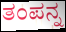
ತಂಪನ್ನ